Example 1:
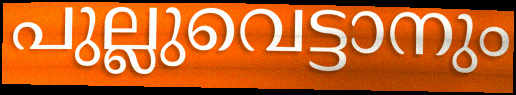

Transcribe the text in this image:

പുല്ലുവെട്ടാനും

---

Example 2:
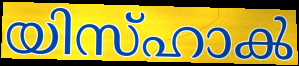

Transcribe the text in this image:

യിസ്ഹാൿ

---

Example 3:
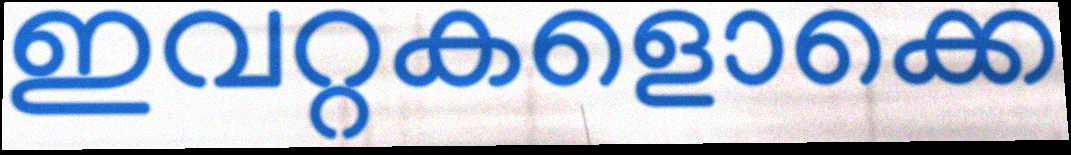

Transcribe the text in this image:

ഇവറ്റകളൊക്കെ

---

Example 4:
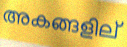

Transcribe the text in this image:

അകങ്ങളില്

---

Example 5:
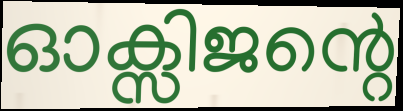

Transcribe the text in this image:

ഓക്സിജന്റെ